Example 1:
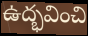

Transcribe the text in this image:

ఉద్భవించి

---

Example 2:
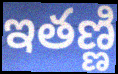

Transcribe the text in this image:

ఇతణ్ణి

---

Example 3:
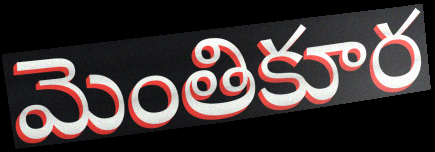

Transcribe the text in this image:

మెంతికూర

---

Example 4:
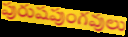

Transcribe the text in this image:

పురుషపుంగవులు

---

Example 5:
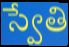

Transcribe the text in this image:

స్వేతి